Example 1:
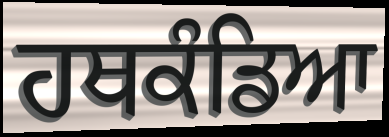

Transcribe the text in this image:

ਹਥਕੰਡਿਆ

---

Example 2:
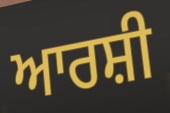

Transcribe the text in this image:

ਆਰਸ਼ੀ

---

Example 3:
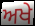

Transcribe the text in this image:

ਅਖੇ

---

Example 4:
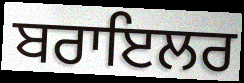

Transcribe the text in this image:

ਬਰਾਇਲਰ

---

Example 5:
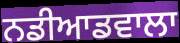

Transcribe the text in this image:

ਨਡੀਆਡਵਾਲਾ